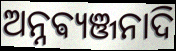
ଅନ୍ନଵ୍ୟଞ୍ଜନାଦି